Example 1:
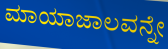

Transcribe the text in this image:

ಮಾಯಾಜಾಲವನ್ನೇ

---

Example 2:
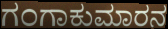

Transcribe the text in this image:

ಗಂಗಾಕುಮಾರನ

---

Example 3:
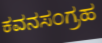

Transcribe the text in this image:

ಕವನಸಂಗ್ರಹ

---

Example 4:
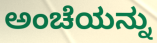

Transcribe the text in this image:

ಅಂಚೆಯನ್ನು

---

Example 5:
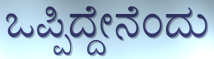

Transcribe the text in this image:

ಒಪ್ಪಿದ್ದೇನೆಂದು